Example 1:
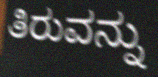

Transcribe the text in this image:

ತಿರುವನ್ನು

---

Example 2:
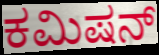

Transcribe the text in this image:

ಕಮಿಷನ್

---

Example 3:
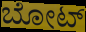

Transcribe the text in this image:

ಬೋಟ್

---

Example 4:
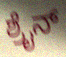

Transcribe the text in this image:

ಶ್ರೈನ್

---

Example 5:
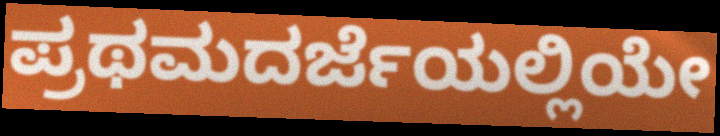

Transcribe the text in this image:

ಪ್ರಥಮದರ್ಜೆಯಲ್ಲಿಯೇ